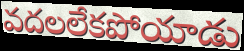
వదలలేకపోయాడు